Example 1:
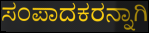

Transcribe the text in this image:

ಸಂಪಾದಕರನ್ನಾಗಿ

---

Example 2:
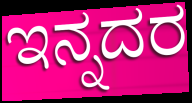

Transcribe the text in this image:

ಇನ್ನದರ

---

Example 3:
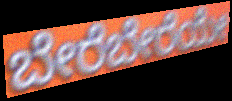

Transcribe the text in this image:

ಬೇರೆಬೇರೆಯೇ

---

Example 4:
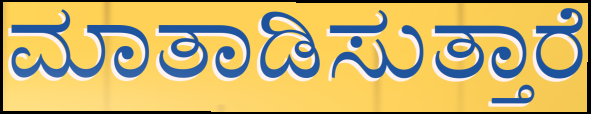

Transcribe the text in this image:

ಮಾತಾಡಿಸುತ್ತಾರೆ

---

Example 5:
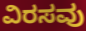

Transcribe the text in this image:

ವಿರಸವು